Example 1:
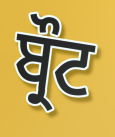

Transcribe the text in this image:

ਬ੍ਰੌਟ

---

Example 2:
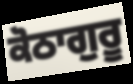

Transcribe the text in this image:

ਕੋਠਾਗੁਰੂ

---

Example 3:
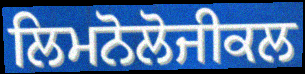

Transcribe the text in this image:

ਲਿਮਨੋਲੋਜੀਕਲ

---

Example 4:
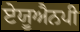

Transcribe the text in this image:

ਏਯੂਐਨਪੀ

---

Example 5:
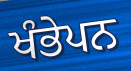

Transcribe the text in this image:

ਖੰਭੇਪਨ